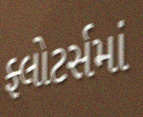
ફ્લોટર્સમાં